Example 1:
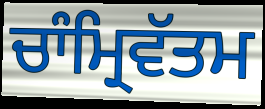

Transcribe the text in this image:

ਚਾੰਮ੍ਰਿਵੱਤਮ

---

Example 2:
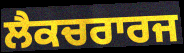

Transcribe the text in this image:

ਲੈਕਚਰਾਰਜ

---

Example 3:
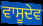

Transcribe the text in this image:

ਵਾਸੂਦੇਵ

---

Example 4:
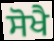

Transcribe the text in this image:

ਸੋਖੈ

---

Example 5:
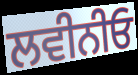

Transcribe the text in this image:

ਲਵੀਨੀਓ